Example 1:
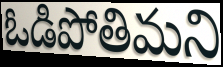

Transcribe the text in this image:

ఓడిపోతిమని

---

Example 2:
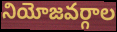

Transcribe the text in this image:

నియోజవర్గాల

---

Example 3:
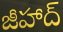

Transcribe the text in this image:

జీహాద్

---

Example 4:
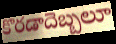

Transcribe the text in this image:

కొరడాదెబ్బలూ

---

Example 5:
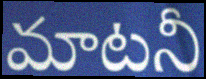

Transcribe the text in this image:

మాటనీ